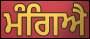
ਮੰਗਿਐ